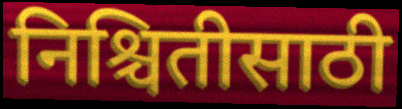
निश्चितीसाठी